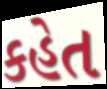
કહેત